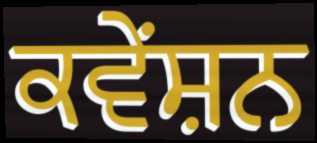
ਕਵੇਂਸ਼ਨ